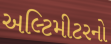
અલ્ટિમીટરનો